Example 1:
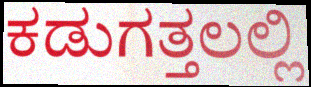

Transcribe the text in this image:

ಕಡುಗತ್ತಲಲ್ಲಿ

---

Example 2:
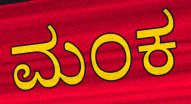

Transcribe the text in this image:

ಮಂಕ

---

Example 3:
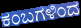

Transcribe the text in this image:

ಕಂಬಗಳಿಂದ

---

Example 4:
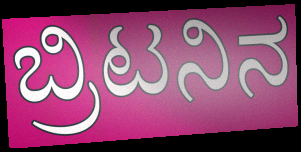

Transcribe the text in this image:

ಬ್ರಿಟನಿನ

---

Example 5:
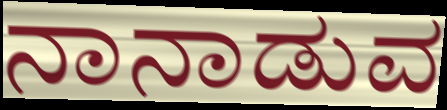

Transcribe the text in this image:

ನಾನಾಡುವ